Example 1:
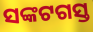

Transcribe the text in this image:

ସଙ୍କଟଗସ୍ତ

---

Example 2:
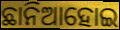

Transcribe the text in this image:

ଛାନିଆହୋଇ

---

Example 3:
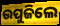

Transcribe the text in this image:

ଉପୁଜିଲେ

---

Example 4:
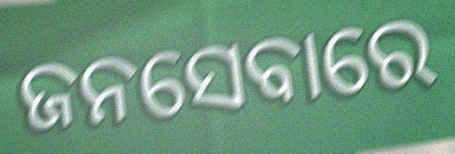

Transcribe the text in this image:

ଜନସେବାରେ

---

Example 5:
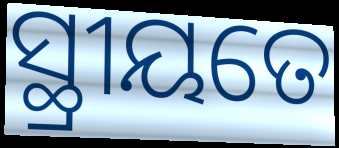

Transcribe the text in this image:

ସ୍ଥ୍ରୀୟତେ